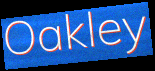
Oakley